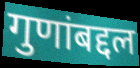
गुणांबद्दल